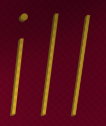
ill